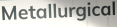
Metallurgical